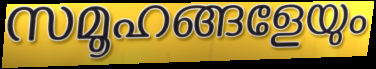
സമൂഹങ്ങളേയും